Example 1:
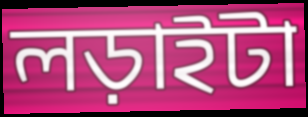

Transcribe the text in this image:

লড়াইটা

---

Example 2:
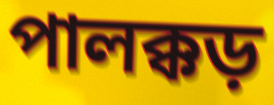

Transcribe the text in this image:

পালক্কড়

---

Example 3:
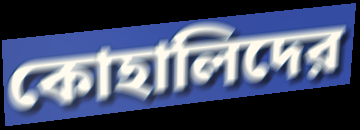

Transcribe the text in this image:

কোহালিদের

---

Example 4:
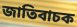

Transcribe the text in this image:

জাতিবাচক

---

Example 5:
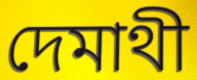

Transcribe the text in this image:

দেমাথী